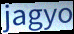
jagyo